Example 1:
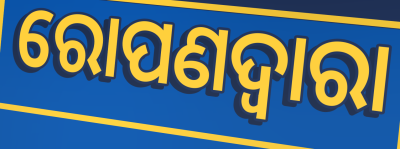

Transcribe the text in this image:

ରୋପଣଦ୍ୱାରା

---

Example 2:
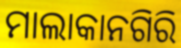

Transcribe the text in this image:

ମାଲାକାନଗିରି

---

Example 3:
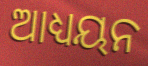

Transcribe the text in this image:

ଆଧ୍ୟୟନ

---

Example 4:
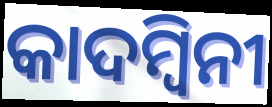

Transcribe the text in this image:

କାଦମ୍ୱିନୀ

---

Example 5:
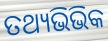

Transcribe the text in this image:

ତଥ୍ୟଭିଭିକ